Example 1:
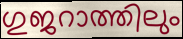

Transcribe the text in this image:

ഗുജറാത്തിലും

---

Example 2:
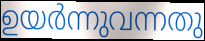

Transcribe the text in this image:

ഉയർന്നുവന്നതു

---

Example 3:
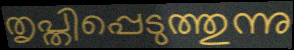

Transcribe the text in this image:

തൃപ്തിപ്പെടുത്തുന്നു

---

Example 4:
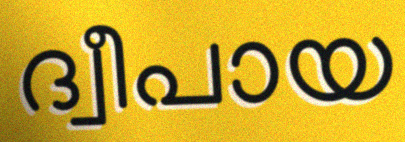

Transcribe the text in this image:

ദ്വീപായ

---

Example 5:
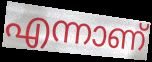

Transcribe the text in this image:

എന്നാണ്